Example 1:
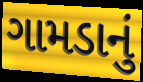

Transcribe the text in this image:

ગામડાનું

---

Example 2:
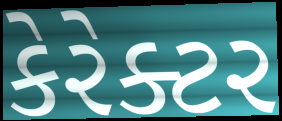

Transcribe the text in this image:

કેરેક્ટર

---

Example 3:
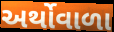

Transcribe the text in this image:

અર્થોવાળા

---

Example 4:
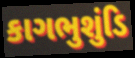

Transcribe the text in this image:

કાગભુશુંડિ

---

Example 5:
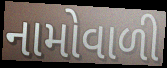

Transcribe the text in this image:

નામોવાળી